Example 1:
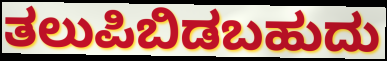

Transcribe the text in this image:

ತಲುಪಿಬಿಡಬಹುದು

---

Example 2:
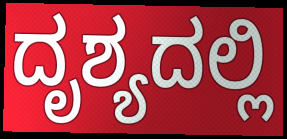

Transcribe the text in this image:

ದೃಶ್ಯದಲ್ಲಿ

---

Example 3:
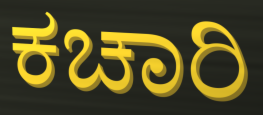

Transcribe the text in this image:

ಕಚಾರಿ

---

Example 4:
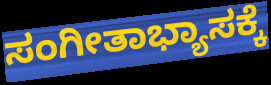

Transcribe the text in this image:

ಸಂಗೀತಾಭ್ಯಾಸಕ್ಕೆ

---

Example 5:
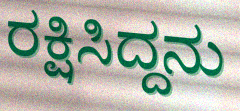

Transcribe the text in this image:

ರಕ್ಷಿಸಿದ್ದನು